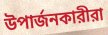
উপার্জনকারীরা